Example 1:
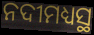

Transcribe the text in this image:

ନଦୀମଧ୍ୟସ୍ଥ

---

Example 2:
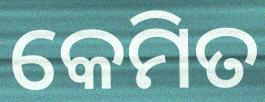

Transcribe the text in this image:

କେମିତ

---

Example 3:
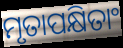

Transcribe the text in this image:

ମୃତାପକ୍ଷିତାଂ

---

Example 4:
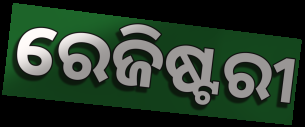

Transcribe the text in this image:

ରେଜିଷ୍ଟରୀ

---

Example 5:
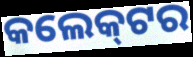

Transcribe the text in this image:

କଲେକ୍‌ଟର